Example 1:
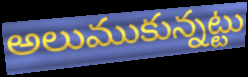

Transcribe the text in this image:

అలుముకున్నట్టు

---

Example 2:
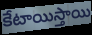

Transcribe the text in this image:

కేటాయిస్తాయి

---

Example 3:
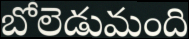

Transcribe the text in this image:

బోలెడుమంది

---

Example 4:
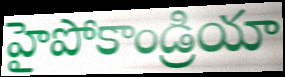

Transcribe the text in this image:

హైపోకాండ్రియా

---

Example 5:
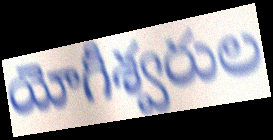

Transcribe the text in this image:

యోగీశ్వరుల